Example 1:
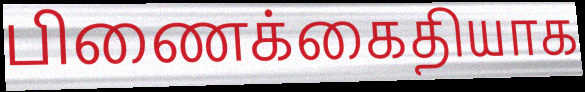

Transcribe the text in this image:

பிணைக்கைதியாக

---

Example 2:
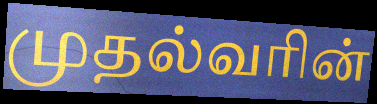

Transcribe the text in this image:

முதல்வரின்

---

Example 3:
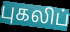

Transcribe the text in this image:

புகலிப்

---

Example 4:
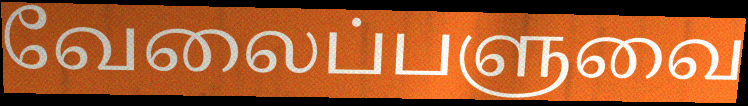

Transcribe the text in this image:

வேலைப்பளுவை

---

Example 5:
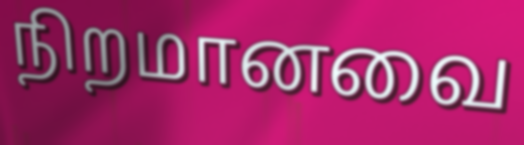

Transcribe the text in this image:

நிறமானவை